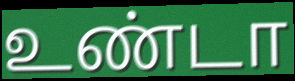
உண்டா